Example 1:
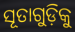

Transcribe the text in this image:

ସୂତାଗୁଡ଼ିକୁ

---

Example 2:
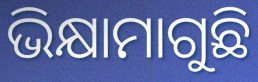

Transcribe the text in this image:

ଭିକ୍ଷାମାଗୁଛି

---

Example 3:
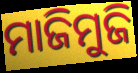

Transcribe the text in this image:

ମାଜିମୁଜି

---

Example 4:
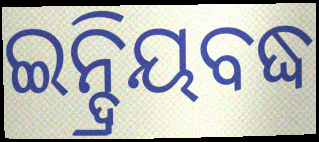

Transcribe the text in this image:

ଇନ୍ଦ୍ରିୟବଦ୍ଧ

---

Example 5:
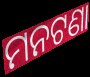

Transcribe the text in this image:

ମନଟଣା